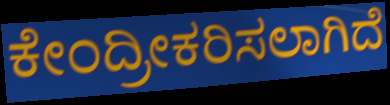
ಕೇಂದ್ರೀಕರಿಸಲಾಗಿದೆ